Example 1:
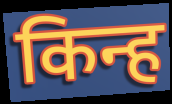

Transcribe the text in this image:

किन्ह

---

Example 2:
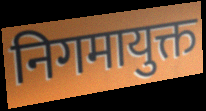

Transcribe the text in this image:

निगमायुक्त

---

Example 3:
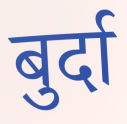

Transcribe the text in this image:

बुर्दा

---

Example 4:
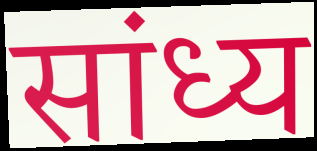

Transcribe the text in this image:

सांध्य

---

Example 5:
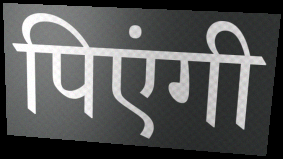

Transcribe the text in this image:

पिएंगी